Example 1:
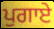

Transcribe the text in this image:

ਪੁਗਾਏ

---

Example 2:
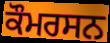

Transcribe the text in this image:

ਕੌਮਰਸਨ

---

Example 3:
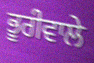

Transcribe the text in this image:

ਭੂਰੀਵਾਲੇ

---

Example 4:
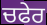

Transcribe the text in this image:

ਚਫੇਰ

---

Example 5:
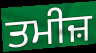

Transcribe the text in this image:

ਤਮੀਜ਼